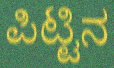
ಪಿಟ್ಟಿನ